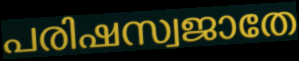
പരിഷസ്വജാതേ